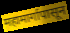
महामार्गापासून